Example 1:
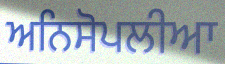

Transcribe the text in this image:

ਅਨਿਸੋਪਲੀਆ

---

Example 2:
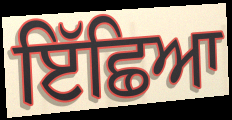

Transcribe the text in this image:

ਇੱਛਿਆ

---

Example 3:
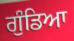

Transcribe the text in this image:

ਗੁੰਡਿਆ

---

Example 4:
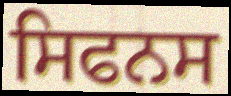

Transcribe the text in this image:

ਸਿਫਨਸ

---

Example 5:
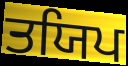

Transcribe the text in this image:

ਤਯਿਪ